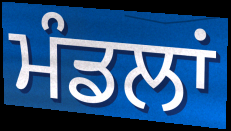
ਮੰਡਲਾਂ